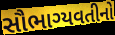
સૌભાગ્યવતીનો